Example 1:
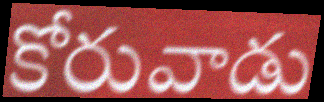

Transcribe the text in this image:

కోరువాడు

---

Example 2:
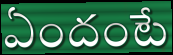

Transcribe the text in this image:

ఏందంటే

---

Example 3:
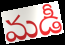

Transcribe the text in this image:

మడీ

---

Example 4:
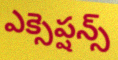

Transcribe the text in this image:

ఎక్సెప్షన్స్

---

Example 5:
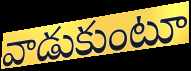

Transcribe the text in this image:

వాడుకుంటూ